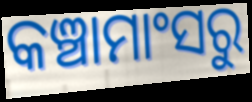
କଞ୍ଚାମାଂସରୁ